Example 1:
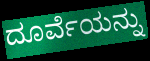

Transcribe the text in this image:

ದೂರ್ವೆಯನ್ನು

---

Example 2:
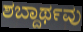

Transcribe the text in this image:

ಶಬ್ದಾರ್ಥವು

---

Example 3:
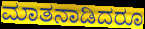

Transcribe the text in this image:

ಮಾತನಾಡಿದರೂ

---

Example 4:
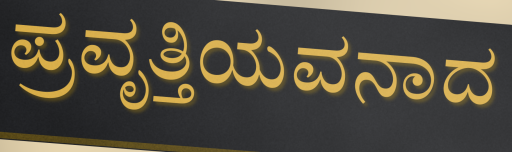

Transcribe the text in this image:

ಪ್ರವೃತ್ತಿಯವನಾದ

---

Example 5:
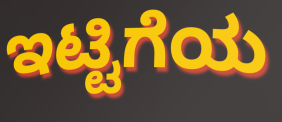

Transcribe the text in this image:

ಇಟ್ಟಿಗೆಯ